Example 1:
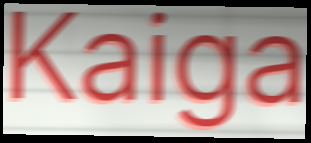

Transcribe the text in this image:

Kaiga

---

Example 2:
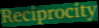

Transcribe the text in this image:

Reciprocity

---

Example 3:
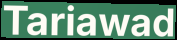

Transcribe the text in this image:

Tariawad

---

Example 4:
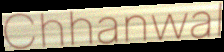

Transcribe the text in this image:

Chhanwal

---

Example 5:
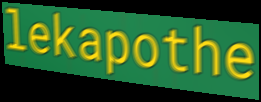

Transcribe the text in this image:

lekapothe